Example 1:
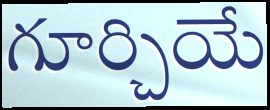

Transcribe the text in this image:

గూర్చియే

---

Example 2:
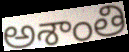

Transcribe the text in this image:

అశాంతి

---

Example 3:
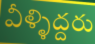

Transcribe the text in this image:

వీళ్ళిద్దరు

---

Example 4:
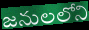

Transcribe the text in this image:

జనులలోని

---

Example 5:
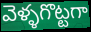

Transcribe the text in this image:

వెళ్ళగొట్టగా